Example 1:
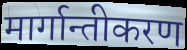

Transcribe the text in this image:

मार्गान्तीकरण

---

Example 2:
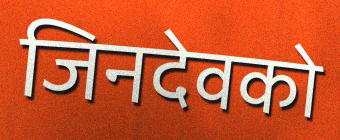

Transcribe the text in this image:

जिनदेवको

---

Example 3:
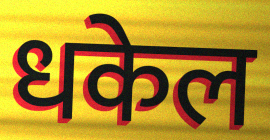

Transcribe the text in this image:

धकेल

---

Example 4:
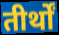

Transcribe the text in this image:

तीर्थों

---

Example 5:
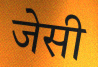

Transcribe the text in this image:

जेसी